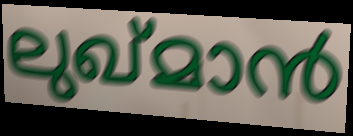
ലുഖ്മാൻ